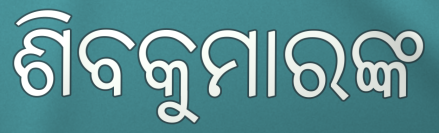
ଶିବକୁମାରଙ୍କ